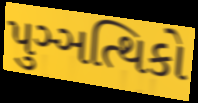
પુઞ્ઞત્થિકો